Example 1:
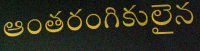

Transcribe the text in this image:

ఆంతరంగికులైన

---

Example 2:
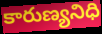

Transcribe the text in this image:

కారుణ్యనిధి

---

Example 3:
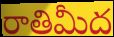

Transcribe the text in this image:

రాతిమీద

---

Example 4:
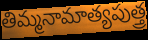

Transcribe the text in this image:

తిమ్మనామాత్యపుత్త్ర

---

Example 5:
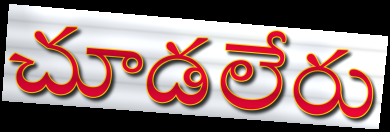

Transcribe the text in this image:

చూడలేరు